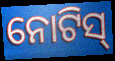
ନୋଟିସ୍